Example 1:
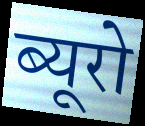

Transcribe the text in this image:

ब्यूरो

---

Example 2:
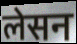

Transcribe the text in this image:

लेसन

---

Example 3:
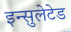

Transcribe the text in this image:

इन्सुलेटेड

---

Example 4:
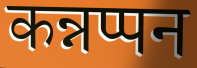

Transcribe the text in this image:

कन्नप्पन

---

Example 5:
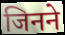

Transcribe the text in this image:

जिनने